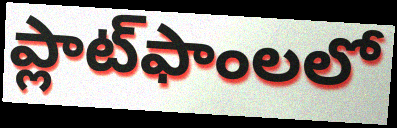
ప్లాట్‌ఫాంలలో